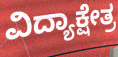
ವಿದ್ಯಾಕ್ಷೇತ್ರ